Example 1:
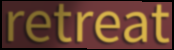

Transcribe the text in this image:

retreat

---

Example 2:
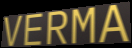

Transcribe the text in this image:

VERMA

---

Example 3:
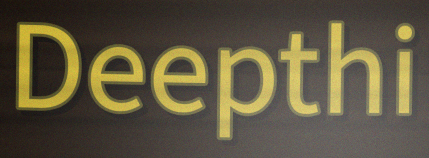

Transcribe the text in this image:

Deepthi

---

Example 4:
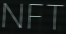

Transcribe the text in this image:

NFT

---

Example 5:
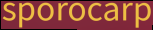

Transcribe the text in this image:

sporocarp